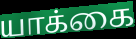
யாக்கை